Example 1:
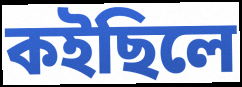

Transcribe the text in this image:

কইছিলে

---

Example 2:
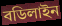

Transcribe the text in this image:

বডিলাইন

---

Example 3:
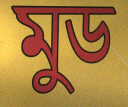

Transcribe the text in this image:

মুড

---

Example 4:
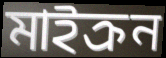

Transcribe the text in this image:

মাইক্রন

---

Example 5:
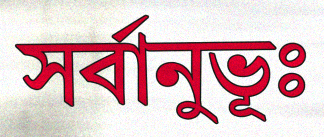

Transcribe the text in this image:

সর্বানুভূঃ